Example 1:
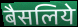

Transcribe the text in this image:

बैसलिये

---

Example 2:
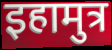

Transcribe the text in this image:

इहामुत्र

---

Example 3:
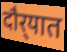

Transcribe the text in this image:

दौर्‍यात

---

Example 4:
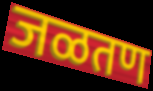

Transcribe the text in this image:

जळतण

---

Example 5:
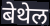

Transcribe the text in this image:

बेथेल